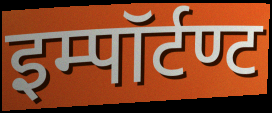
इम्पॉर्टण्ट